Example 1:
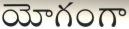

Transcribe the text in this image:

యోగంగా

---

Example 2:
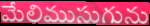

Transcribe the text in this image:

మేలిముసుగును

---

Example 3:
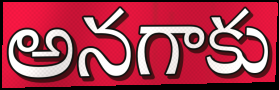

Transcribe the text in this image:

అనగాకు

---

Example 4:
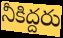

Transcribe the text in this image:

నీకిద్దరు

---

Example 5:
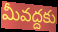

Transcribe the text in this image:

మీవద్దకు